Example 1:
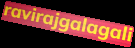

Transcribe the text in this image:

ravirajgalagali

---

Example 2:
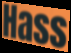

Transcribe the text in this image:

Hass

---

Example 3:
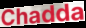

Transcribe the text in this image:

Chadda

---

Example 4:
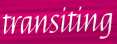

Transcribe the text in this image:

transiting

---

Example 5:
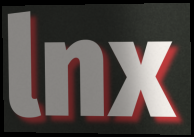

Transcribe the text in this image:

lnx